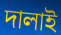
দালাই